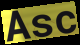
Asc